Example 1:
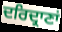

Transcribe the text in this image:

ਦਰਿਦ੍ਰਾਣਾਂ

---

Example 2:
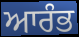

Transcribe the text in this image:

ਆਰੰਭ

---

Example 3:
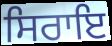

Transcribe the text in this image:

ਸਿਰਾਇ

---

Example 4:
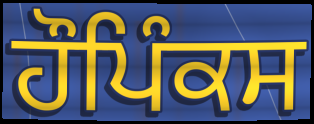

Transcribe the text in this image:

ਹੌਪਿੰਕਸ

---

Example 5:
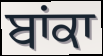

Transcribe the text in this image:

ਬਾਂਕਾ